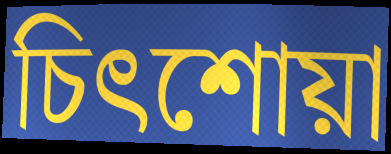
চিৎশোয়া